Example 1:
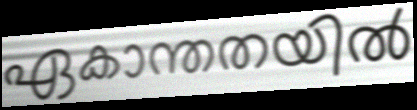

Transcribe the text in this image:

ഏകാന്തതയിൽ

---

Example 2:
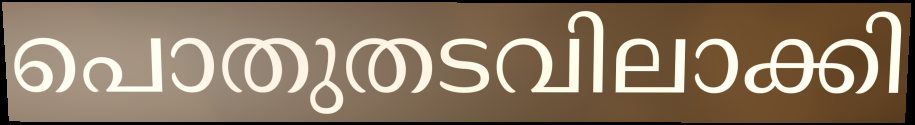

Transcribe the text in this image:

പൊതുതടവിലാക്കി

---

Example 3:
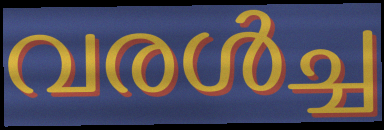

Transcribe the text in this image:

വരൾച്ച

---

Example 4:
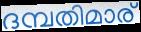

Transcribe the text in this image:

ദമ്പതിമാര്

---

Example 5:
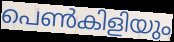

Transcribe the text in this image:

പെൺകിളിയും